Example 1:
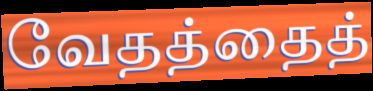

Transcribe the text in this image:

வேதத்தைத்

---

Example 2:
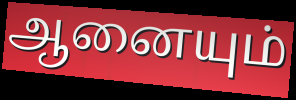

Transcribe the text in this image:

ஆனையும்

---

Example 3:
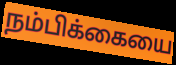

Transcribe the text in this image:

நம்பிக்கையை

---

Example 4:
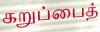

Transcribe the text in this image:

கறுப்பைத்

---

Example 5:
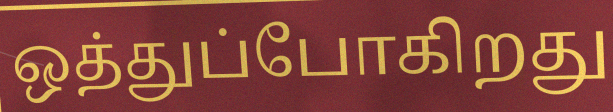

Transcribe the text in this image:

ஒத்துப்போகிறது